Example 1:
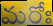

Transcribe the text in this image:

మరోః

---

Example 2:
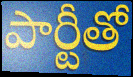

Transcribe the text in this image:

పార్టీతో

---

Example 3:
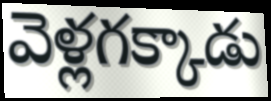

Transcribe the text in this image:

వెళ్లగక్కాడు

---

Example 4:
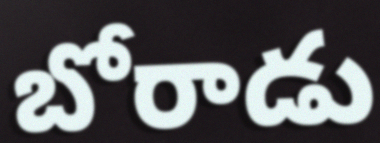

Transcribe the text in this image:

బోరాడు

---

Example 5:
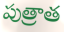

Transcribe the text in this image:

పుత్రాత